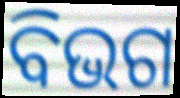
ବିଭଗ